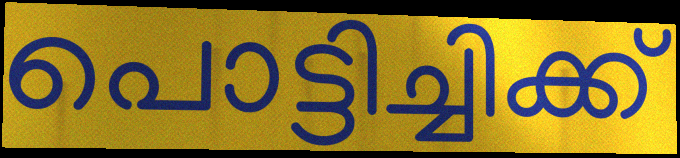
പൊട്ടിച്ചിക്ക്